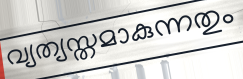
വ്യത്യസ്തമാകുന്നതും